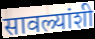
सावल्यांशी